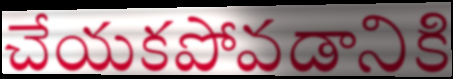
చేయకపోవడానికి